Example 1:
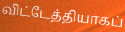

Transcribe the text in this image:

விட்டேத்தியாகப்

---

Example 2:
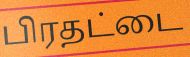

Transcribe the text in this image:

பிரதட்டை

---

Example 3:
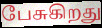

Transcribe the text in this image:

பேசுகிறது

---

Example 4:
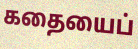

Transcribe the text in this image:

கதையைப்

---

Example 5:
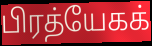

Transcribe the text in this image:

பிரத்யேகக்